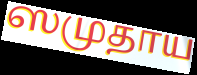
ஸமுதாய